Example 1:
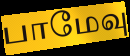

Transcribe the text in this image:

பாமேவு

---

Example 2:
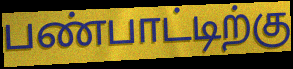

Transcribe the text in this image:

பண்பாட்டிற்கு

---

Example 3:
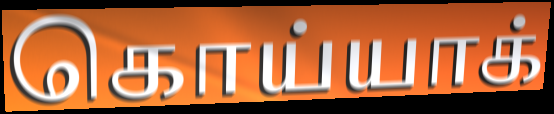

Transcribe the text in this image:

கொய்யாக்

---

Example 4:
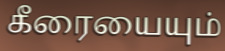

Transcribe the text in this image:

கீரையையும்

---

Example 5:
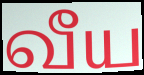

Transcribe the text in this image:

வீய